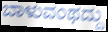
ಬಾಳುವಂಥದ್ದು